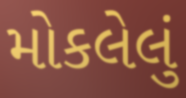
મોકલેલું